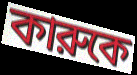
কারুকে